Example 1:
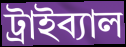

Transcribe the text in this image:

ট্রাইব্যাল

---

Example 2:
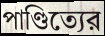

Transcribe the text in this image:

পাণ্ডিত্যের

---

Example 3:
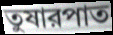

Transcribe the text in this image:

তুষারপাত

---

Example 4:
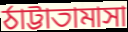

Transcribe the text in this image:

ঠাট্টাতামাসা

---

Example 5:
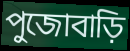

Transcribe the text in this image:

পুজোবাড়ি